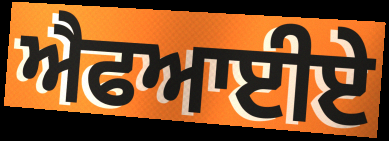
ਐਫਆਈਏ